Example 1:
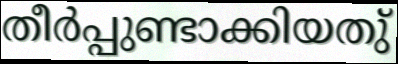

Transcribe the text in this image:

തീർപ്പുണ്ടാക്കിയതു്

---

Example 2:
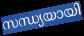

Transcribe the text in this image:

സന്ധ്യയായി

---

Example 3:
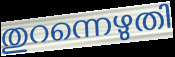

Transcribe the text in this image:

തുറന്നെഴുതി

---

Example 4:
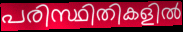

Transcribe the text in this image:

പരിസ്ഥിതികളിൽ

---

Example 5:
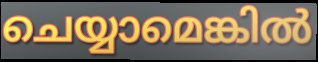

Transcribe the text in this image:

ചെയ്യാമെങ്കിൽ